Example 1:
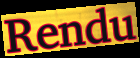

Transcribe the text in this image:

Rendu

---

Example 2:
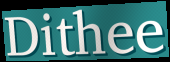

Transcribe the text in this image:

Dithee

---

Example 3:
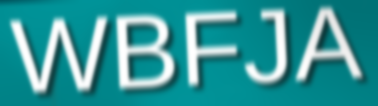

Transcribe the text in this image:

WBFJA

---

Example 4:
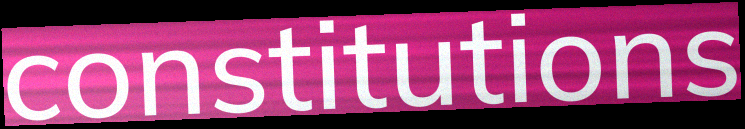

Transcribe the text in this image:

constitutions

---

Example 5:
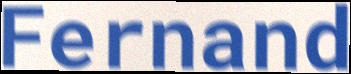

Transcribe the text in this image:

Fernand